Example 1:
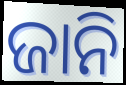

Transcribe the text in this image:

ଜାନି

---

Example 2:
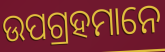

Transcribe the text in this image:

ଉପଗ୍ରହମାନେ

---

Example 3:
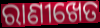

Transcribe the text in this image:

ରାଣୀଖେତ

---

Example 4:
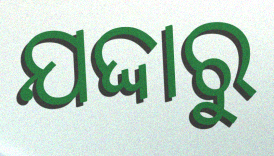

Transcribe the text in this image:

ଯଦ୍ଦାରୁ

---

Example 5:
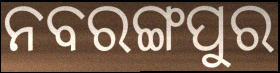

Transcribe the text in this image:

ନବରଙ୍ଗପୁର